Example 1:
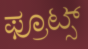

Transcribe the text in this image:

ಫ್ರೂಟ್ಸ್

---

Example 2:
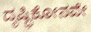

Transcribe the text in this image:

ದೃಷ್ಟಿಕೋನವೇ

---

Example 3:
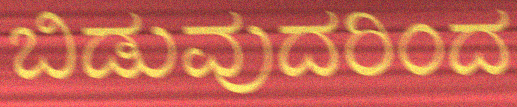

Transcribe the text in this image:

ಬಿಡುವುದರಿಂದ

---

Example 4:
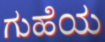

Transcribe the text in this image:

ಗುಹೆಯ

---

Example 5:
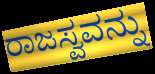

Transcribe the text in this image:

ರಾಜಸ್ವವನ್ನು